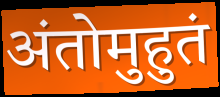
अंतोमुहुतं